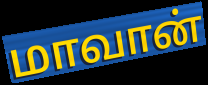
மாவான்